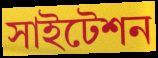
সাইটেশন